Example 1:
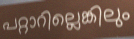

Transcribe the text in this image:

പറ്റാറില്ലെങ്കിലും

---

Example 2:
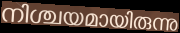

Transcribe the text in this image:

നിശ്ചയമായിരുന്നു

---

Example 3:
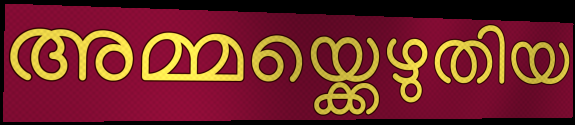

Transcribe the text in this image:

അമ്മയ്ക്കെഴുതിയ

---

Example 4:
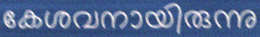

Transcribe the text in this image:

കേശവനായിരുന്നു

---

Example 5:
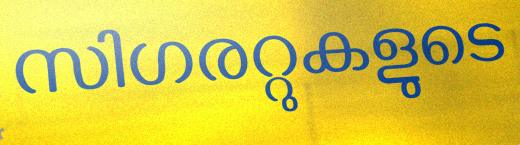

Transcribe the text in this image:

സിഗരറ്റുകളുടെ